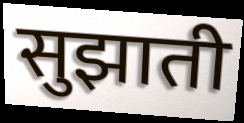
सुझाती